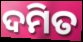
ଦମିତ